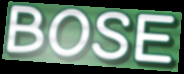
BOSE